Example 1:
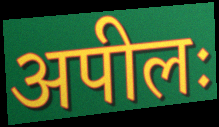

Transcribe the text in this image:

अपीलः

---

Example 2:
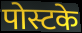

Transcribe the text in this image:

पोस्टके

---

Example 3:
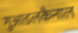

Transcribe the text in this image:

गुआडलकैनाल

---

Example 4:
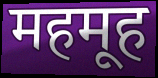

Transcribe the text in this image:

महमूह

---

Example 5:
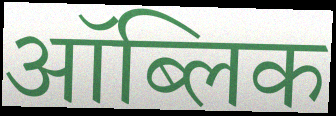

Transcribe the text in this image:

ऑब्लिक